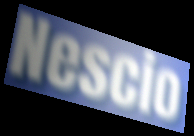
Nescio